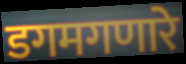
डगमगणारे